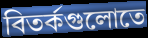
বিতর্কগুলোতে